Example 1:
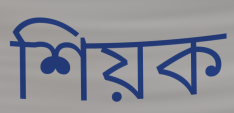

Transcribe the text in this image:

শিয়ক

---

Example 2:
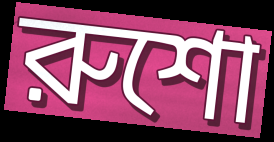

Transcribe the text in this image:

রুশো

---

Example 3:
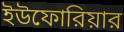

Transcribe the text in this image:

ইউফোরিয়ার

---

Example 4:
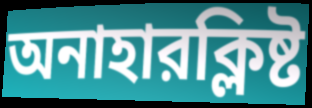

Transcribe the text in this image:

অনাহারক্লিষ্ট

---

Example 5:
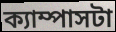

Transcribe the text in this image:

ক্যাম্পাসটা